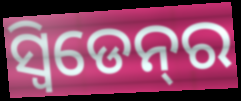
ସ୍ୱିଡେନ୍‌ର